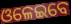
ଓଳେଇବେ